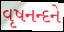
વૃષનન્દને